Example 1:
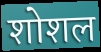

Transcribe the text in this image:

शोशल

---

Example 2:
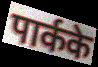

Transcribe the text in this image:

पार्कके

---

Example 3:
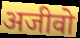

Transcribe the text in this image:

अजीवो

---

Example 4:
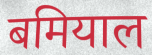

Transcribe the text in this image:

बमियाल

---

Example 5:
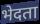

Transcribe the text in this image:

भेदता